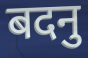
बदनु